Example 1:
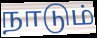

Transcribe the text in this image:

நாடும்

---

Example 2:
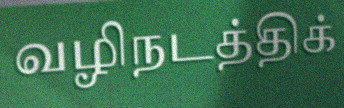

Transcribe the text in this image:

வழிநடத்திக்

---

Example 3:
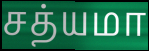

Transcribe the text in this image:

சத்யமா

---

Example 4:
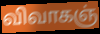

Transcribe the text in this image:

விவாகஞ்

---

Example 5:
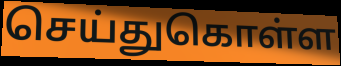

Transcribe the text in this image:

செய்துகொள்ள